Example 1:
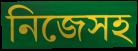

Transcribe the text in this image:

নিজেসহ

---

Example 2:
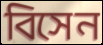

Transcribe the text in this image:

বিসেন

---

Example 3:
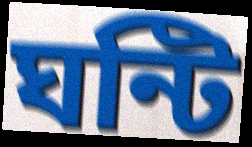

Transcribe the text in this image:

ঘন্টি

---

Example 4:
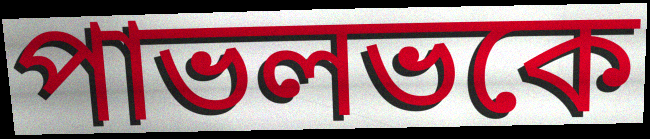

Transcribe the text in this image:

পাভলভকে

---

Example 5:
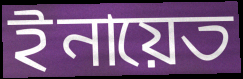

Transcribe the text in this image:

ইনায়েত